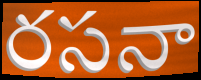
రసనా